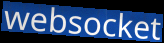
websocket